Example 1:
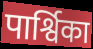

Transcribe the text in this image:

पार्श्विका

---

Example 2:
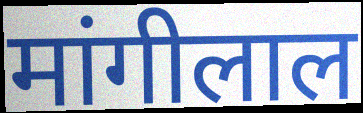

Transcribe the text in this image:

मांगीलाल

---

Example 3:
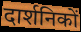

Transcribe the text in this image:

दार्शनिकों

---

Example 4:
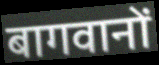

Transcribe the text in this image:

बागवानों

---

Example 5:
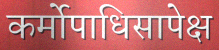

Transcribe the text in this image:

कर्मोपाधिसापेक्ष